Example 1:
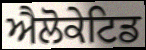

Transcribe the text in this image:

ਐਲੋਕੇਟਿਡ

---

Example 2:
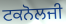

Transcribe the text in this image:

ਟਕਨੋਲਜੀ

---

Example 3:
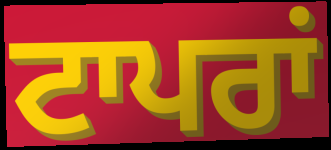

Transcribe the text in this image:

ਟਾਪਰਾਂ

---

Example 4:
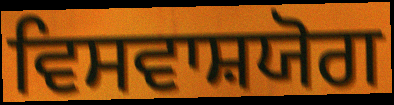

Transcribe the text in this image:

ਵਿਸਵਾਸ਼ਯੋਗ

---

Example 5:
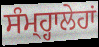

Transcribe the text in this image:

ਸੰਮ੍ਹ੍ਹਾਲੇਹਾਂ